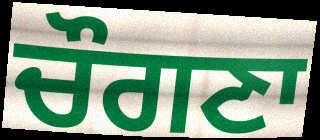
ਚੌਗਣਾ